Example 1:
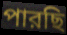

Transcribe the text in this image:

পারছি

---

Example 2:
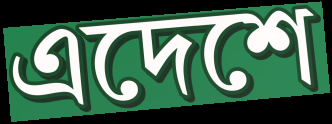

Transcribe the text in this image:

এদেশে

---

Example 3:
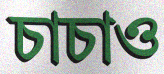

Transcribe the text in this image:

চাচাও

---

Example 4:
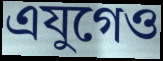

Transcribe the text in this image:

এযুগেও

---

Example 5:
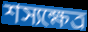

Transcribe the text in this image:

শস্যক্ষেত্র